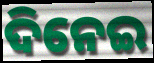
ଦିନେଇ